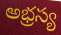
అభ్రస్య